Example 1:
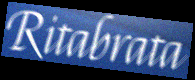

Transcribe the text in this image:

Ritabrata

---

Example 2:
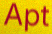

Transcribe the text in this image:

Apt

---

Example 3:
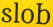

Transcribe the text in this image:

slob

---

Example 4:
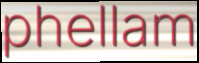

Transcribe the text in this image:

phellam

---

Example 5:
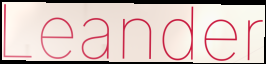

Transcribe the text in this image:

Leander